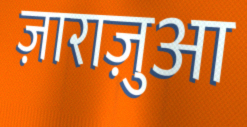
ज़ाराज़ुआ